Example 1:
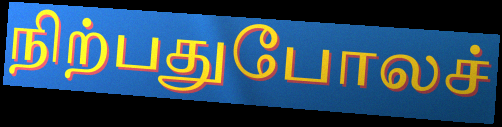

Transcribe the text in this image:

நிற்பதுபோலச்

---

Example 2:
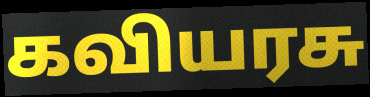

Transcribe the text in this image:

கவியரசு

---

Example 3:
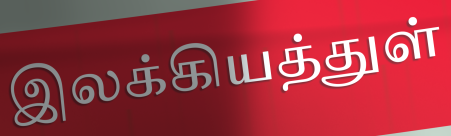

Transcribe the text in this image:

இலக்கியத்துள்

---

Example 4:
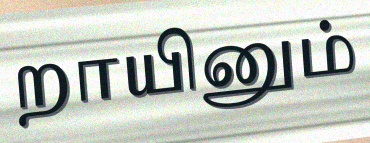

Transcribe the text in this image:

றாயினும்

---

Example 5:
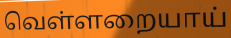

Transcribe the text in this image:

வெள்ளறையாய்